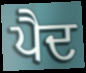
ਪੈਦ